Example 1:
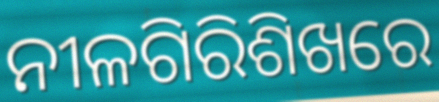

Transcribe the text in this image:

ନୀଳଗିରିଶିଖରେ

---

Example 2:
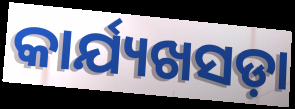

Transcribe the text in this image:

କାର୍ଯ୍ୟଖସଡ଼ା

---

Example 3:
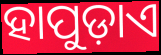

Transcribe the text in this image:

ହାପୁଡ଼ାଏ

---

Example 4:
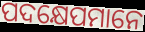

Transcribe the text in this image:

ପଦକ୍ଷେପମାନେ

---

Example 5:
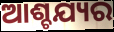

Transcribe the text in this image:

ଆଶ୍ଚଯ୍ୟର